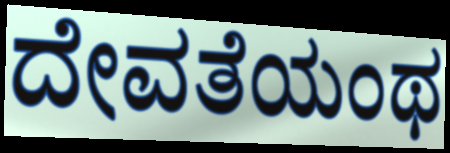
ದೇವತೆಯಂಥ